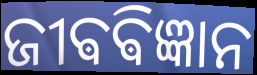
ଜୀଵଵିଜ୍ଞାନ